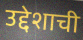
उद्देशाची